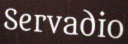
Servadio